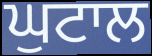
ਘੁਟਾਲ